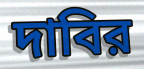
দাবির